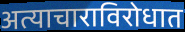
अत्याचाराविरोधात